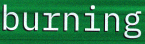
burning